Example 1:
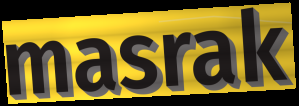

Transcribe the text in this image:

masrak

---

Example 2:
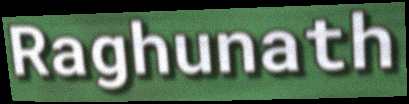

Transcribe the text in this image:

Raghunath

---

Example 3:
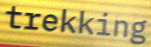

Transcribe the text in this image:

trekking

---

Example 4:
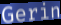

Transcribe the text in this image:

Gerin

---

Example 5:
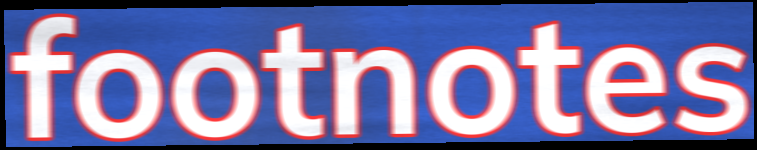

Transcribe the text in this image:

footnotes